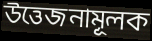
উত্তেজনামূলক